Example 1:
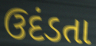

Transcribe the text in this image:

ઉદંડતા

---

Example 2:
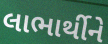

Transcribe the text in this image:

લાભાર્થીને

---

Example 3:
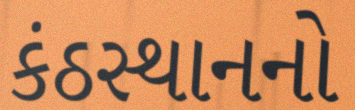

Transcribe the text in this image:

કંઠસ્થાનનો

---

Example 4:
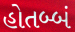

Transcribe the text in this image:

હોતબ્બં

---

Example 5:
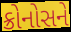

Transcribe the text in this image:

ક્રોનોસને